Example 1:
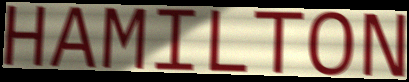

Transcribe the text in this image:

HAMILTON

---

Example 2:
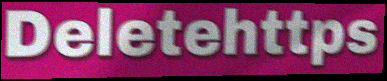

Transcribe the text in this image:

Deletehttps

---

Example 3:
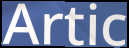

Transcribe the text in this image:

Artic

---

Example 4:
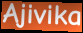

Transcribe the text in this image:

Ajivika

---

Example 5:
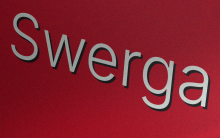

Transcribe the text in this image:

Swerga